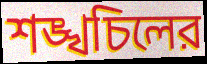
শঙ্খচিলের